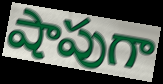
షాపుగా